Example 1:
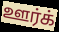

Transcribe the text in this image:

ஊர்க்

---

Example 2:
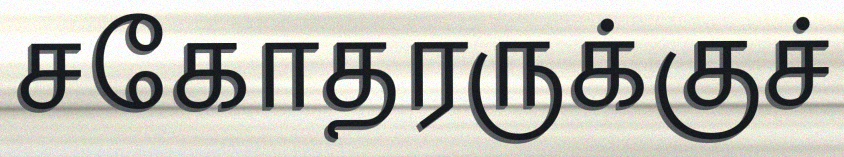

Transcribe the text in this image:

சகோதரருக்குச்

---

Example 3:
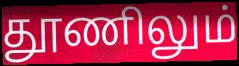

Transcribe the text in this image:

தூணிலும்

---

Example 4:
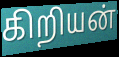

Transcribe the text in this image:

கிறியன்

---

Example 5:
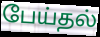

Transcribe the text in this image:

பேய்தல்